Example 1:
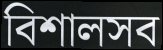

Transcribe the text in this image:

বিশালসব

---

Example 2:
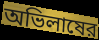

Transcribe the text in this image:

অভিলাষের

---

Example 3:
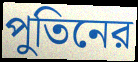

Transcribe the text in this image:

পুতিনের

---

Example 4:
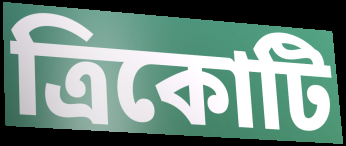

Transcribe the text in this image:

ত্রিকোটি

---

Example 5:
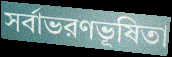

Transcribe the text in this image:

সর্বাভরণভূষিতা